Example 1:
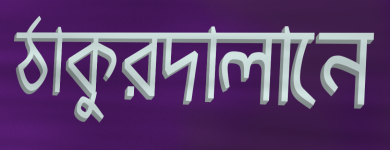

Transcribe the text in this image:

ঠাকুরদালানে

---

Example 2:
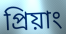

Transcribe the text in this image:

প্রিয়াং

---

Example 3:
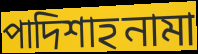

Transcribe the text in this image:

পাদিশাহনামা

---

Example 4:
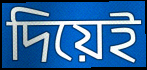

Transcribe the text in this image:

দিয়েই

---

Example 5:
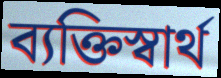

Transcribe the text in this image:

ব্যক্তিস্বার্থ